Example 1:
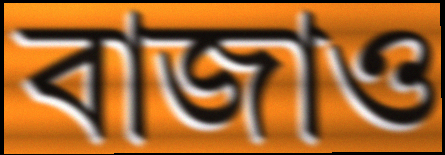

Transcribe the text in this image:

বাজাও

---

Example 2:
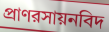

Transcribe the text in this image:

প্রাণরসায়নবিদ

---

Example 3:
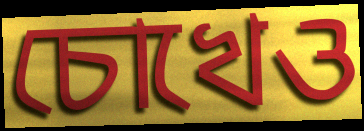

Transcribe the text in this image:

চোখেও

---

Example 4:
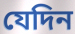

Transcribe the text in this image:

যেদিন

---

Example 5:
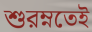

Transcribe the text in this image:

শুরম্নতেই